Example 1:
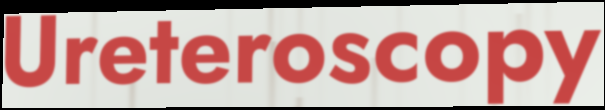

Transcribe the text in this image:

Ureteroscopy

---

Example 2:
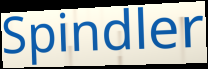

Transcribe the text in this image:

Spindler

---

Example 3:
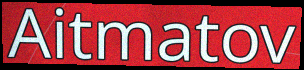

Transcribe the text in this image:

Aitmatov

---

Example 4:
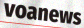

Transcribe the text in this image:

voanews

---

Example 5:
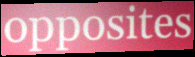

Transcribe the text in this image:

opposites